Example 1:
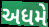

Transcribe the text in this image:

અધમે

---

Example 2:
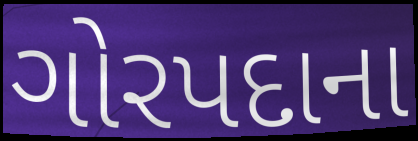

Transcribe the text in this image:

ગોરપદાના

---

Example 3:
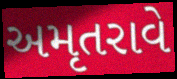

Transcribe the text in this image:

અમૃતરાવે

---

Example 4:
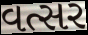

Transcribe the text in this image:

વત્સર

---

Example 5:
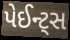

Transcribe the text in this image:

પેઈન્ટ્સ